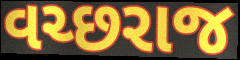
વચ્છરાજ